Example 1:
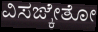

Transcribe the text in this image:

ವಿಸಙ್ಕೇತೋ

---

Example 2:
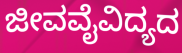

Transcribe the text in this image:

ಜೀವವೈವಿದ್ಯದ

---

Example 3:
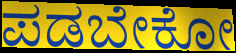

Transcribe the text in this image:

ಪಡಬೇಕೋ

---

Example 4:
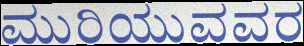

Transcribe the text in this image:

ಮುರಿಯುವವರ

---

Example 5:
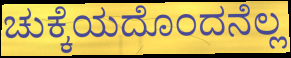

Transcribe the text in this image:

ಚುಕ್ಕೆಯದೊಂದನೆಲ್ಲ